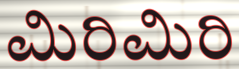
ಮಿರಿಮಿರಿ